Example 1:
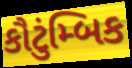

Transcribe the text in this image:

કૌટુંમ્બિક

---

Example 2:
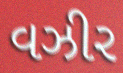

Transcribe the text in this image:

વઝીર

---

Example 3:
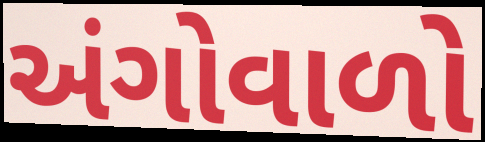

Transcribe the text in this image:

અંગોવાળો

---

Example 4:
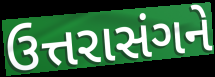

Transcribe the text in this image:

ઉત્તરાસંગને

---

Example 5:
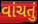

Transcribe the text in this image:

વાંચતું